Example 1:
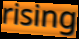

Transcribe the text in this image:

rising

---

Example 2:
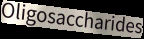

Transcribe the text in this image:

Oligosaccharides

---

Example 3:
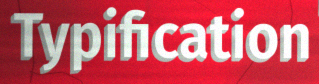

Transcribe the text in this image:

Typification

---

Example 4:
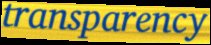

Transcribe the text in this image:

transparency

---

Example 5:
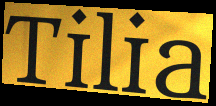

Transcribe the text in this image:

Tilia